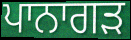
ਪਾਨਾਗੜ